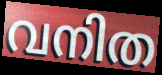
വനിത